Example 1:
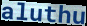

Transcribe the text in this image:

aluthu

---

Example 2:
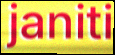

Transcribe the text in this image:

janiti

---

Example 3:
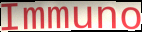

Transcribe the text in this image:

Immuno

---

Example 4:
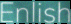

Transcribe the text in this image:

Enlish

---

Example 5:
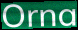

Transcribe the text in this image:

Orna